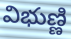
విభుణ్ణి